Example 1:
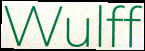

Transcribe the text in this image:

Wulff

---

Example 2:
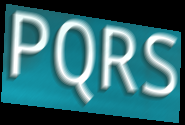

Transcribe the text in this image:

PQRS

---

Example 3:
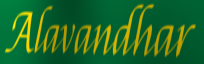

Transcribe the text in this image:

Alavandhar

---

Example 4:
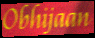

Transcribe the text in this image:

Obhijaan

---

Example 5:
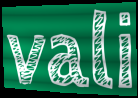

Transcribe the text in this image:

vali